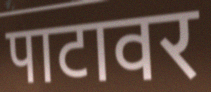
पाटावर